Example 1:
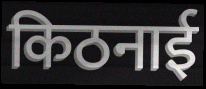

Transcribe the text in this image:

किठनाई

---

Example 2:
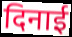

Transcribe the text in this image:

दिनाई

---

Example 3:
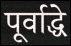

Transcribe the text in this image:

पूर्वाद्धे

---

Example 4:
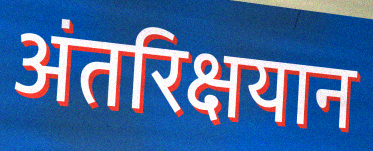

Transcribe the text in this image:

अंतरिक्षयान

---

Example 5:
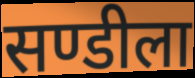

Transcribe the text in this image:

सण्डीला